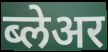
ब्लेअर